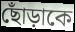
ছোঁড়াকে